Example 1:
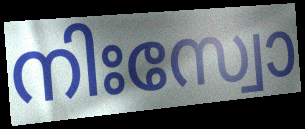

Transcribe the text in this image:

നിഃസ്വോ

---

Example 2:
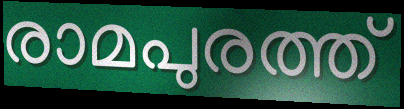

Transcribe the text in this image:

രാമപുരത്ത്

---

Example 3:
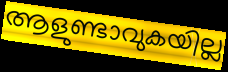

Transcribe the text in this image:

ആളുണ്ടാവുകയില്ല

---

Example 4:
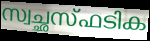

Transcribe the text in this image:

സ്വച്ഛസ്ഫടിക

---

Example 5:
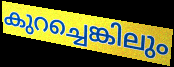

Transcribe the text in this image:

കുറച്ചെങ്കിലും